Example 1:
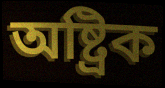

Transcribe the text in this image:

অষ্ট্ৰিক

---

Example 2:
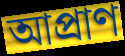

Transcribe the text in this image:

আপ্ৰাণ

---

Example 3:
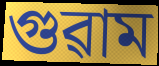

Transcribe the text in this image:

গুৱাম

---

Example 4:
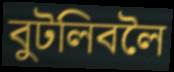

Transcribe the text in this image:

বুটলিবলৈ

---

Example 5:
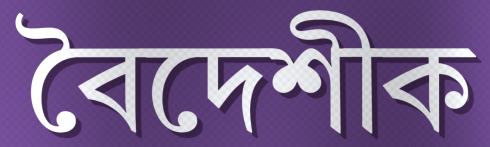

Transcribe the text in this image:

বৈদেশীক